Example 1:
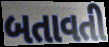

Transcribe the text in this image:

બતાવતી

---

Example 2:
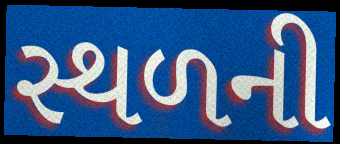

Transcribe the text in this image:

સ્થળની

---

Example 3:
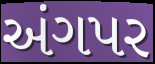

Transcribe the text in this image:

અંગપર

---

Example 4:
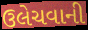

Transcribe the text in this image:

ઉલેચવાની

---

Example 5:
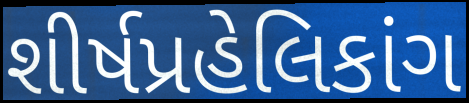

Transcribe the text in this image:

શીર્ષપ્રહેલિકાંગ